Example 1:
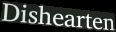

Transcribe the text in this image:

Dishearten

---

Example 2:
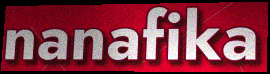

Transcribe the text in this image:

nanafika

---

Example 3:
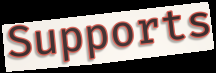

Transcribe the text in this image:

Supports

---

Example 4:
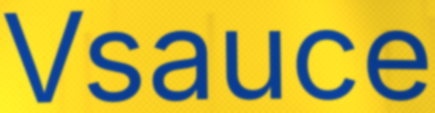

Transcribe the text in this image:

Vsauce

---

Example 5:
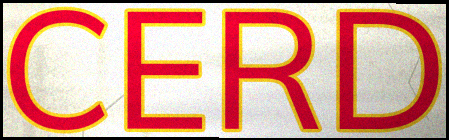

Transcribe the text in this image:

CERD